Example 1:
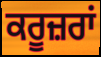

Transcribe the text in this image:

ਕਰੂਜ਼ਰਾਂ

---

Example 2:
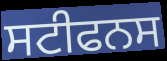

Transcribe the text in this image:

ਸਟੀਫਨਸ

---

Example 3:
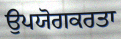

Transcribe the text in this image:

ਉਪਯੋਗਕਰਤਾ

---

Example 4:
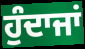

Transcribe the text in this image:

ਹੁੰਦਾਜਾਂ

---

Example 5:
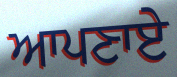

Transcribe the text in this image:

ਆਪਣਾਏ